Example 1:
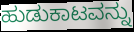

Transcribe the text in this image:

ಹುಡುಕಾಟವನ್ನು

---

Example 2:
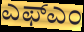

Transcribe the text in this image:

ಎಫ್ಎಂ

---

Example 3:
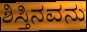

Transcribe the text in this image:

ಶಿಸ್ತಿನವನು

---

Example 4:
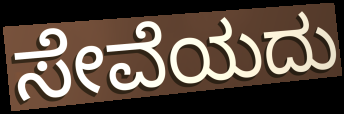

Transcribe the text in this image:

ಸೇವೆಯದು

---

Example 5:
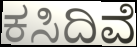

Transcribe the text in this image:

ಕಸಿದಿವೆ